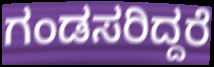
ಗಂಡಸರಿದ್ದರೆ